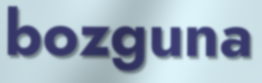
bozguna